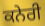
ਕਨੇਰੀ